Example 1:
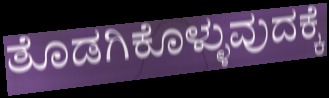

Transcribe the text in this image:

ತೊಡಗಿಕೊಳ್ಳುವುದಕ್ಕೆ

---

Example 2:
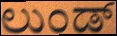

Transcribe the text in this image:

ಲುಂಡ್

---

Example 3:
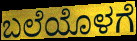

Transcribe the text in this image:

ಬಲೆಯೊಳಗೆ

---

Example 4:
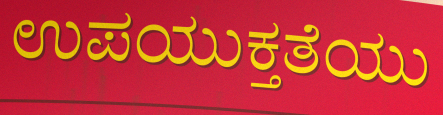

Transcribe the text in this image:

ಉಪಯುಕ್ತತೆಯು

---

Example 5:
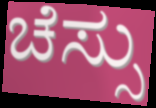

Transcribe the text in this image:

ಚೆಸ್ಸು